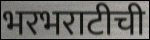
भरभराटीची